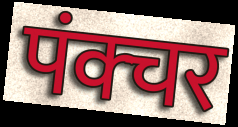
पंक्‍चर